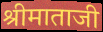
श्रीमाताजी